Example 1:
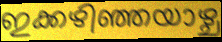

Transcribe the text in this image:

ഇക്കഴിഞ്ഞയാഴ്ച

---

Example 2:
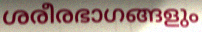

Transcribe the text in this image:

ശരീരഭാഗങ്ങളും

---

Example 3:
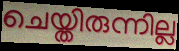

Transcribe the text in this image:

ചെയ്തിരുന്നില്ല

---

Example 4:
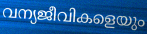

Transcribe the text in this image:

വന്യജീവികളെയും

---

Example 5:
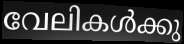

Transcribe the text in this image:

വേലികൾക്കു